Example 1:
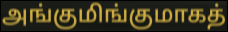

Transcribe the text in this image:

அங்குமிங்குமாகத்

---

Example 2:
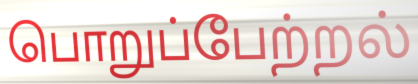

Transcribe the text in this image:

பொறுப்பேற்றல்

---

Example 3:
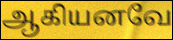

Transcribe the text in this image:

ஆகியனவே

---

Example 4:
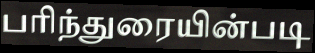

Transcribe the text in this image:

பரிந்துரையின்படி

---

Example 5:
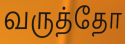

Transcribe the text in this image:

வருத்தோ